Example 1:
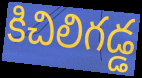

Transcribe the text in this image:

కిచిలిగడ్డ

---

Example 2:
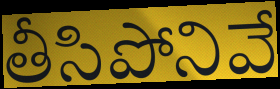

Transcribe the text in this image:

తీసిపోనివే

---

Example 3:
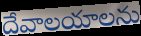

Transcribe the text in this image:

దేవాలయాలను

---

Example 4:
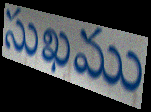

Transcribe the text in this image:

సుఖము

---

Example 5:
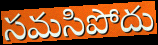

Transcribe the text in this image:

సమసిపోదు